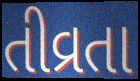
તીવ્રતા